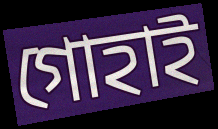
গোহাই